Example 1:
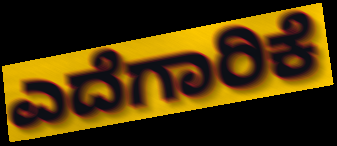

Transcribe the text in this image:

ಎದೆಗಾರಿಕೆ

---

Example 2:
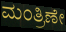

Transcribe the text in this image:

ಮಂತ್ರಿಣೇ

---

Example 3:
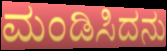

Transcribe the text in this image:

ಮಂಡಿಸಿದನು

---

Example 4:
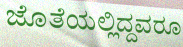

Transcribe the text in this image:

ಜೊತೆಯಲ್ಲಿದ್ದವರೂ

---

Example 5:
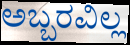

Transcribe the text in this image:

ಅಬ್ಬರವಿಲ್ಲ